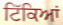
ਟਿੱਕਿਆਂ